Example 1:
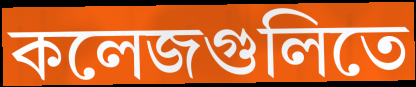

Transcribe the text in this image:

কলেজগুলিতে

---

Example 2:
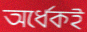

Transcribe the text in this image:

অর্ধেকই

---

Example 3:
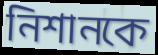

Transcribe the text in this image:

নিশানকে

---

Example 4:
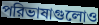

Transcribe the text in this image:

পরিভাষাগুলোও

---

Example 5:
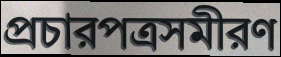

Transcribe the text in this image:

প্রচারপত্রসমীরণ